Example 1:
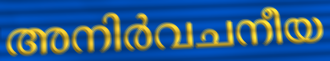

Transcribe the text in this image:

അനിർവചനീയ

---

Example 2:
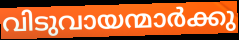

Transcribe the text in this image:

വിടുവായന്മാർക്കു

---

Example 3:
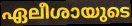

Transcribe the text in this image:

ഏലീശായുടെ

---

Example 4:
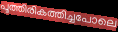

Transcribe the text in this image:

പൂത്തിരികത്തിച്ചപോലെ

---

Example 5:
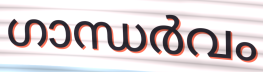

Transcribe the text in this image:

ഗാന്ധർവം